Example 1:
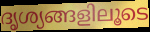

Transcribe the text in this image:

ദൃശ്യങ്ങളിലൂടെ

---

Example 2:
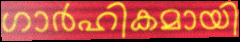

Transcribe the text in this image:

ഗാർഹികമായി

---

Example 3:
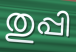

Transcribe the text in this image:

തുപ്പി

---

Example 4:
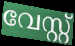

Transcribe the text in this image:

വേസ്റ്റ്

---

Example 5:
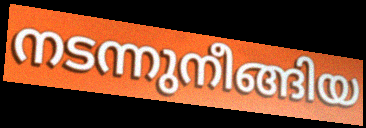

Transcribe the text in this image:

നടന്നുനീങ്ങിയ